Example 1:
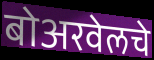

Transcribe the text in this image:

बोअरवेलचे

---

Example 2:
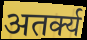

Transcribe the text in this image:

अतर्क्‍य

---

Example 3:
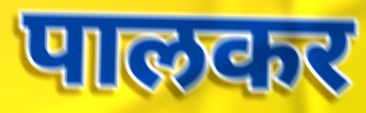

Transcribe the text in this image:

पालकर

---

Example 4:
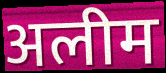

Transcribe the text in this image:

अलीम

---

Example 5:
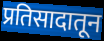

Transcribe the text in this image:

प्रतिसादातून